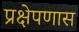
प्रक्षेपणास